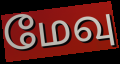
மேவு